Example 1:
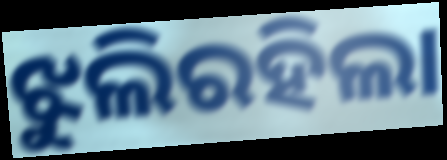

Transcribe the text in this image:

ଝୁଲିରହିଲା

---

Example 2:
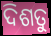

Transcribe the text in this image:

ଦିଶତୁ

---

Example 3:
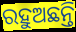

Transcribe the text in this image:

ରହୁଅଛନ୍ତି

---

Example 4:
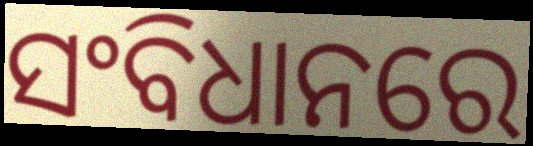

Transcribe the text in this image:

ସଂବିଧାନରେ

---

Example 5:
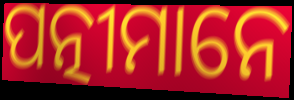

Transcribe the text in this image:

ପତ୍ନୀମାନେ